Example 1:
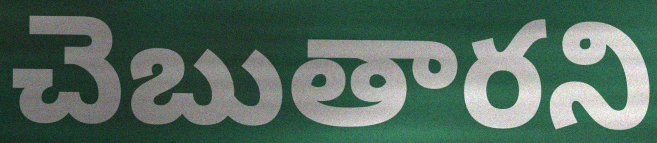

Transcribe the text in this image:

చెబుతారని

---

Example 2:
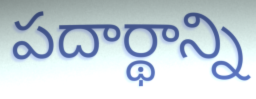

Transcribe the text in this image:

పదార్థాన్ని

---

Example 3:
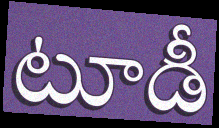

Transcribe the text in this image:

టూడీ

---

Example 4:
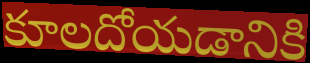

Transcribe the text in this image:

కూలదోయడానికి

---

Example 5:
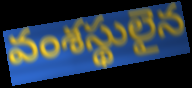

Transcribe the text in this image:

వంశస్థులైన